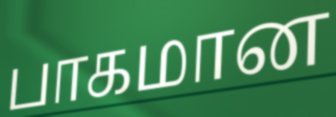
பாகமான